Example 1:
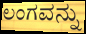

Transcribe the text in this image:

ಲಂಗವನ್ನು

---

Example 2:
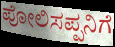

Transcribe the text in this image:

ಪೋಲಿಸಪ್ಪನಿಗೆ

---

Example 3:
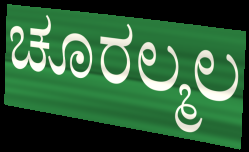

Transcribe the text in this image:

ಚೂರಲ್ಮಲ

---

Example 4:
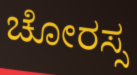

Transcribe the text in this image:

ಚೋರಸ್ಸ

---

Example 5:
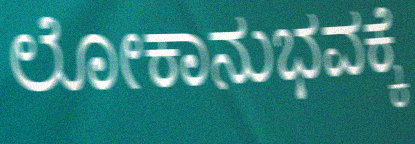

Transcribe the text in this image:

ಲೋಕಾನುಭವಕ್ಕೆ